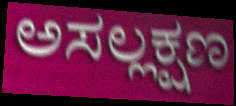
ಅಸಲ್ಲಕ್ಷಣ